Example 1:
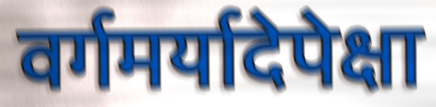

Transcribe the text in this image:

वर्गमर्यादेपेक्षा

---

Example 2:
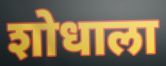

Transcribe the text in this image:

शोधाला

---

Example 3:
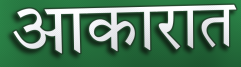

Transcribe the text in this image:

आकारात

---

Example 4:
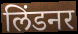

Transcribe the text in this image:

लिंडनर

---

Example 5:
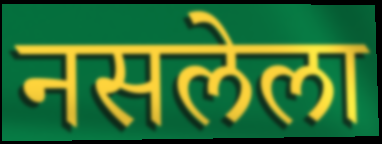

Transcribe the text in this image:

नसलेला